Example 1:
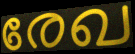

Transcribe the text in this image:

രേഖ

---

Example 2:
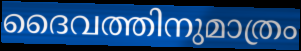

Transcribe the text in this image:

ദൈവത്തിനുമാത്രം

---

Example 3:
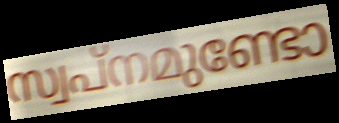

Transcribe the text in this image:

സ്വപ്നമുണ്ടോ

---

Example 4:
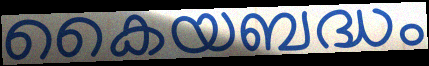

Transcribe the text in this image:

കൈയബദ്ധം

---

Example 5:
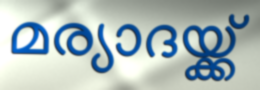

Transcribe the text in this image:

മര്യാദയ്ക്ക്